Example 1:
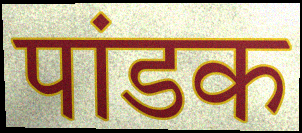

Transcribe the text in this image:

पांडक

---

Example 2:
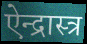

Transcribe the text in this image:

ऐन्द्रास्त्र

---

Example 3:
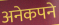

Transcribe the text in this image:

अनेकपने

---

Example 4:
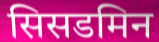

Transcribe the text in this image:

सिसडमिन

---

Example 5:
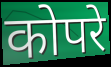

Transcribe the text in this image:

कोपरे